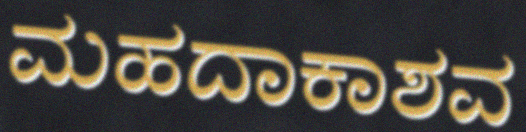
ಮಹದಾಕಾಶವ